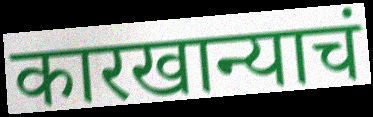
कारखान्याचं